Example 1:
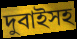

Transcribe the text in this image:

দুবাইসহ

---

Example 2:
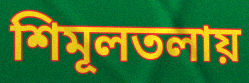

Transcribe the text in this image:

শিমূলতলায়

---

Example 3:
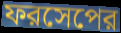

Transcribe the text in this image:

ফরসেপের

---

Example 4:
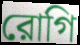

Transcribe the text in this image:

রোগি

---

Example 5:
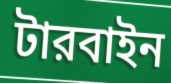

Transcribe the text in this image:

টারবাইন